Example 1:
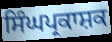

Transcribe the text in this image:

ਸਿੰਘਪ੍ਰਕਾਸ਼ਕ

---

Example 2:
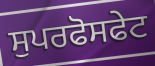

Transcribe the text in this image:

ਸੁਪਰਫੋਸਫੇਟ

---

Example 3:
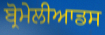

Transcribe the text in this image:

ਬ੍ਰੋਮੇਲੀਆਡਸ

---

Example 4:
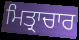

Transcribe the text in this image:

ਮਿਤ੍ਰਾਚਾਰ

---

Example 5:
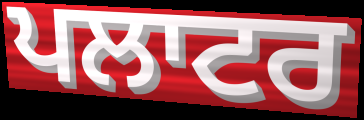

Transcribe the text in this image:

ਪਲਾਟਰ